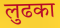
लुढका